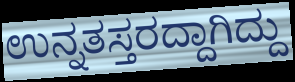
ಉನ್ನತಸ್ತರದ್ದಾಗಿದ್ದು